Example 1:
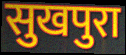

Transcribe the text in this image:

सुखपुरा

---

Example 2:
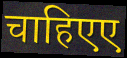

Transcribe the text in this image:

चाहिएए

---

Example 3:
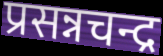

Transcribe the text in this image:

प्रसन्नचन्द्र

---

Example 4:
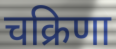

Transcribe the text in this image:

चक्रिणा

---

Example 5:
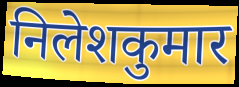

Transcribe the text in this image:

निलेशकुमार